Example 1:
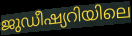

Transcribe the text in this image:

ജുഡീഷ്യറിയിലെ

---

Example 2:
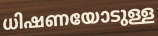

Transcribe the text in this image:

ധിഷണയോടുള്ള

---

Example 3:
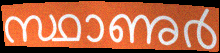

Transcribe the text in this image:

സ്ഥാണുർ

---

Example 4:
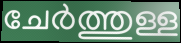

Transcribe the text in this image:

ചേർത്തുള്ള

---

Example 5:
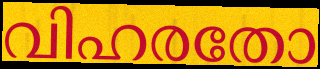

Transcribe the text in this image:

വിഹരതോ